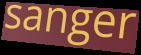
sanger